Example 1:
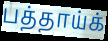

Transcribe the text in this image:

பத்தாய்க்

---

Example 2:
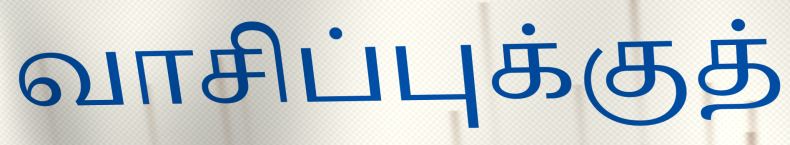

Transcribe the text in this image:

வாசிப்புக்குத்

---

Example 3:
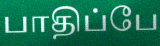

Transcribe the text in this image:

பாதிப்பே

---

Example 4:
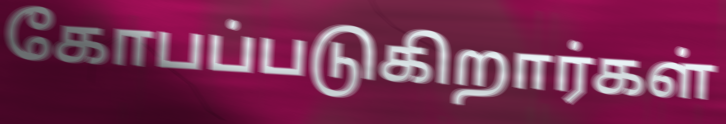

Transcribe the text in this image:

கோபப்படுகிறார்கள்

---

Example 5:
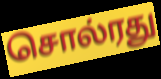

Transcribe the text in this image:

சொல்ரது